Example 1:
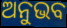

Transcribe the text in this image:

ଅନୁଭବ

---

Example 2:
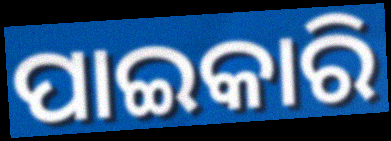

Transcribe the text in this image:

ପାଇକାରି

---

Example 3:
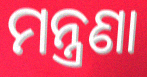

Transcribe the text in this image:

ମନ୍ତ୍ରଣା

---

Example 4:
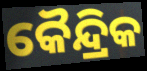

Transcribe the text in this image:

କୈନ୍ଦ୍ରିକ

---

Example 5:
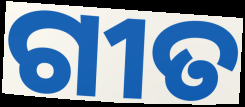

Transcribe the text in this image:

ଗୀତ